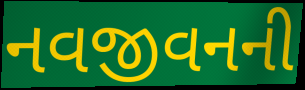
નવજીવનની